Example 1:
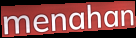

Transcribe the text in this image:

menahan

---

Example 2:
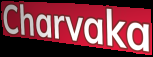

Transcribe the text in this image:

Charvaka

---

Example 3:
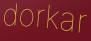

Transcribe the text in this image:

dorkar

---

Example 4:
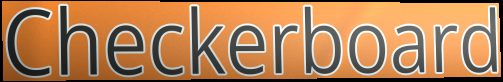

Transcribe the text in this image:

Checkerboard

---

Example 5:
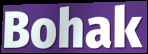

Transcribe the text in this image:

Bohak